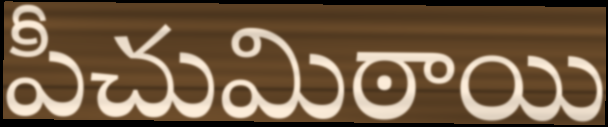
పీచుమిఠాయి